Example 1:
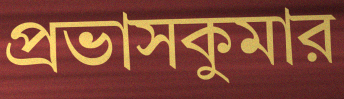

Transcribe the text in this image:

প্রভাসকুমার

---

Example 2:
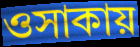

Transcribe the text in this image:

ওসাকায়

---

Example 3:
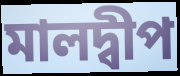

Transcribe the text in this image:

মালদ্বীপ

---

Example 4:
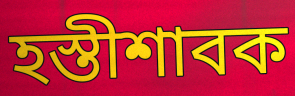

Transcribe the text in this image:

হস্তীশাবক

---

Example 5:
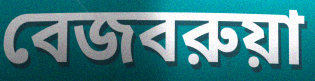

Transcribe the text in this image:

বেজবরুয়া